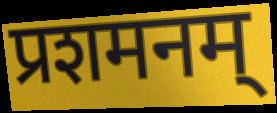
प्रशमनम्